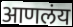
आणलंय